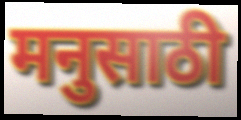
मनुसाठी